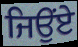
ਜਿਉਂਏ